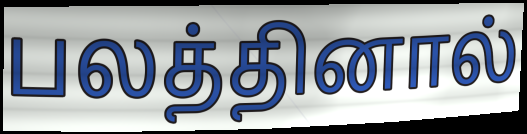
பலத்தினால்